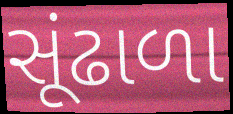
સૂંઢાળા